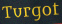
Turgot